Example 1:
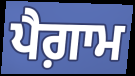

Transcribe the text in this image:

ਪੈਗ਼ਾਮ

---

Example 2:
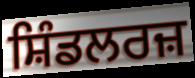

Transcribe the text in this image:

ਸ਼ਿੰਡਲਰਜ਼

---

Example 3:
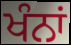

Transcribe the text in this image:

ਖੰਨਾਂ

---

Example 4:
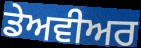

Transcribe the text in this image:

ਡੇਅਵੀਅਰ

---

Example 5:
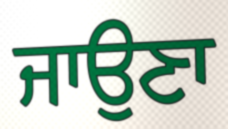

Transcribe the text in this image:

ਜਾਉਣਾ